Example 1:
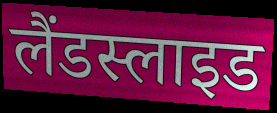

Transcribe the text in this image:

लैंडस्लाइड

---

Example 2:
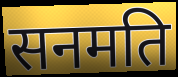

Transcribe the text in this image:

सनमति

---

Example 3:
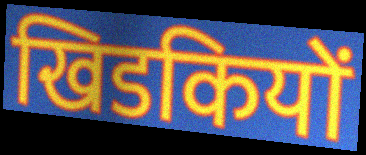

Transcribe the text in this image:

खिडकियों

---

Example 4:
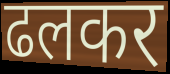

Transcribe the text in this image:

ढलकर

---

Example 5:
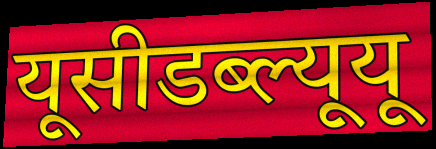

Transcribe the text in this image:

यूसीडब्ल्यूयू